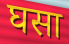
घसा